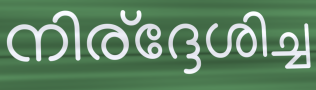
നിര്ദ്ദേശിച്ച